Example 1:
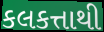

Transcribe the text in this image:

કલકત્તાથી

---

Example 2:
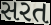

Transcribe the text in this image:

સરત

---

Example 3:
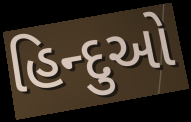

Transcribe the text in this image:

હિન્દુઓ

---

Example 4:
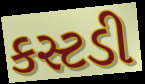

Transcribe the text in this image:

કસ્ટડી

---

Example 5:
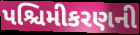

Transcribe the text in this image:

પશ્ચિમીકરણની